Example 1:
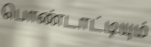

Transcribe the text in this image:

பொண்டாட்டியும்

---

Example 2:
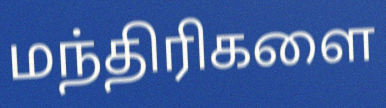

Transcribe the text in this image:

மந்திரிகளை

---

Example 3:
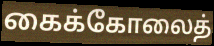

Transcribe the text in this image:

கைக்கோலைத்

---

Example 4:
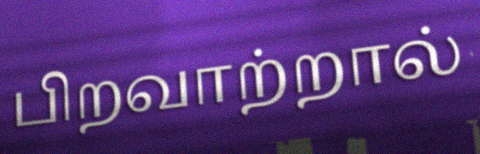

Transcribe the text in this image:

பிறவாற்றால்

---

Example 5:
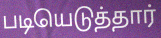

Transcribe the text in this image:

படியெடுத்தார்